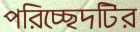
পরিচ্ছেদটির